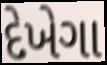
દેખેગા